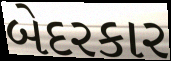
બેદરકાર